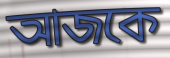
আজকে